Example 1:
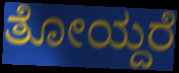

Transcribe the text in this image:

ತೋಯ್ದರೆ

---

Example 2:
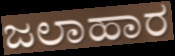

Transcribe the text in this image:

ಜಲಾಹಾರ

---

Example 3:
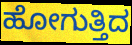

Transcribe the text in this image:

ಹೋಗುತ್ತಿದ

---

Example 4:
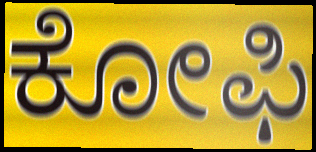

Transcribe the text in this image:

ಕೋಫಿ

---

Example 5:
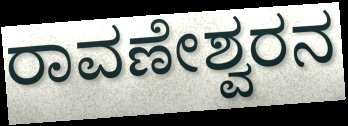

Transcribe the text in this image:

ರಾವಣೇಶ್ವರನ